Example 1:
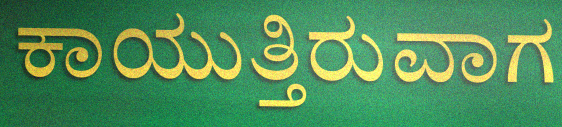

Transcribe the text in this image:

ಕಾಯುತ್ತಿರುವಾಗ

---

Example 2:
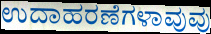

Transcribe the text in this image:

ಉದಾಹರಣೆಗಳಾವುವು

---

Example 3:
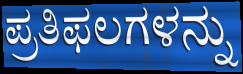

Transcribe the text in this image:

ಪ್ರತಿಫಲಗಳನ್ನು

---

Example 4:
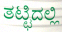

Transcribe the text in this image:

ತಟ್ಟಿದಲ್ಲಿ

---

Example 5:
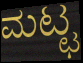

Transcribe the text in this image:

ಮಟ್ಟ